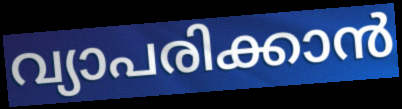
വ്യാപരിക്കാൻ